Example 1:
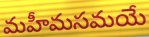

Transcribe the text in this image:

మహీమసమయే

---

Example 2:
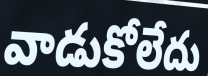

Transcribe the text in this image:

వాడుకోలేదు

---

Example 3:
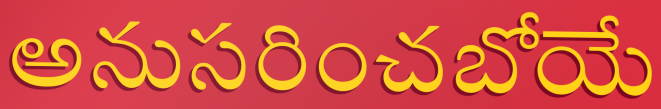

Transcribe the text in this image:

అనుసరించబోయే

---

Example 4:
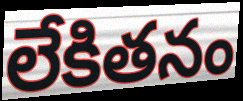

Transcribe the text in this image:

లేకితనం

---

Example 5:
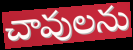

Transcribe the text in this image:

చావులను